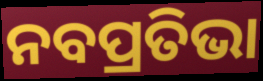
ନବପ୍ରତିଭା